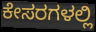
ಕೇಸರಗಳಲ್ಲಿ